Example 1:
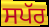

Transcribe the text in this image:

ਸਪੱਰ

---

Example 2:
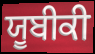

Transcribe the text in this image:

ਯੂਬੀਕੀ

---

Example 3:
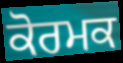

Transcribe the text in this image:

ਕੋਰਮਕ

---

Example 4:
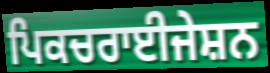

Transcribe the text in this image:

ਪਿਕਚਰਾਈਜੇਸ਼ਨ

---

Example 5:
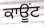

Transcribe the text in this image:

ਕਾਊਂਟ